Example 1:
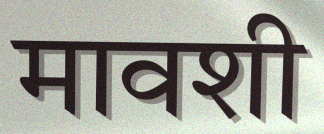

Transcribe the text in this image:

मावशी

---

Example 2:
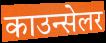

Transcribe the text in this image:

काउन्सेलर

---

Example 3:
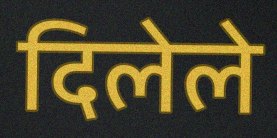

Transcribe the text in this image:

दिलेले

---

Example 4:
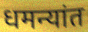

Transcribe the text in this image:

धमन्यांत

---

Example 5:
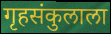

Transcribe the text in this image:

गृहसंकुलाला